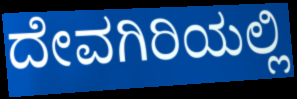
ದೇವಗಿರಿಯಲ್ಲಿ